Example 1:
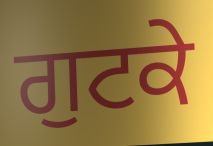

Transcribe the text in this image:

ਗੁਟਕੇ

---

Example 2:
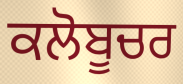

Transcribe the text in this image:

ਕਲੋਬੂਚਰ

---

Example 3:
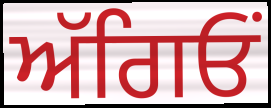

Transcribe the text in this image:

ਅੱਗਿਓਂ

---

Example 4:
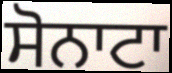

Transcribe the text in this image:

ਸੋਨਾਟਾ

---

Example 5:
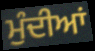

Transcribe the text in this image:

ਮੁੰਦੀਆਂ